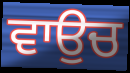
ਵਾਉਚ